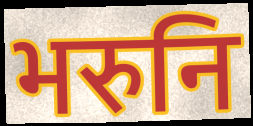
भरुनि